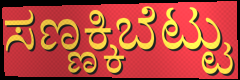
ಸಣ್ಣಕ್ಕಿಬೆಟ್ಟು